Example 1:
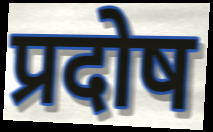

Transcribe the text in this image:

प्रदोष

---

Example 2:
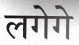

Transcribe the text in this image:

लगेगे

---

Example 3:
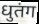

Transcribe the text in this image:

धुतंग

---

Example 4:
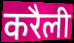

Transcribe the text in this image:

करैली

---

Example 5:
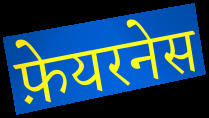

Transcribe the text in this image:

फ़ेयरनेस